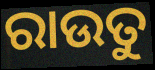
ରାଉତୁ